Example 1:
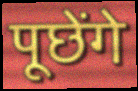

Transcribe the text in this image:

पूछेंगे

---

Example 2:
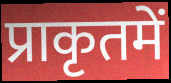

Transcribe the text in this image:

प्राकृतमें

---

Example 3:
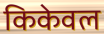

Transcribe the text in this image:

किकेवल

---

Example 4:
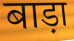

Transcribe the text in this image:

बाड़ा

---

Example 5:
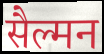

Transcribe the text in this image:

सैल्मन